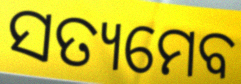
ସତ୍ୟମେବ